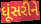
ધૂંસરીને